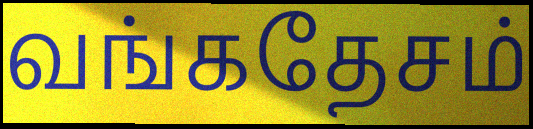
வங்கதேசம்